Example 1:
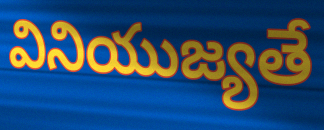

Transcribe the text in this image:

వినియుజ్యతే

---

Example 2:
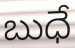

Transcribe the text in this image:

బుధే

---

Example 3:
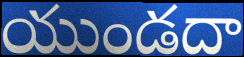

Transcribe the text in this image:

యుండదా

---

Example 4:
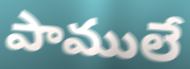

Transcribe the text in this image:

పాములే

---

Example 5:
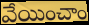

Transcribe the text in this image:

వేయించాం